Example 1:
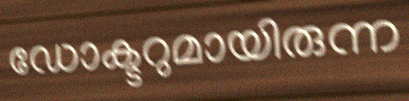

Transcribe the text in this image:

ഡോക്ടറുമായിരുന്ന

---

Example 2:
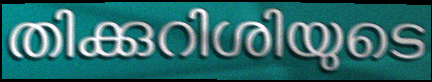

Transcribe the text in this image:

തിക്കുറിശിയുടെ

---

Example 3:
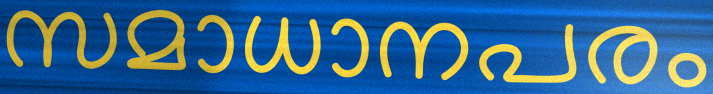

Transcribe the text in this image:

സമാധാനപരം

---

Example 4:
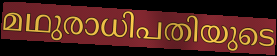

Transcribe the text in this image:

മഥുരാധിപതിയുടെ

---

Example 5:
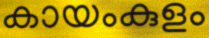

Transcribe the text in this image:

കായംകുളം